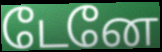
டேனே